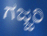
ಗಜ್ಜರಿ